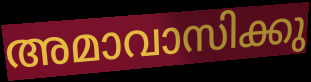
അമാവാസിക്കു